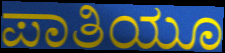
ಪಾತಿಯೂ